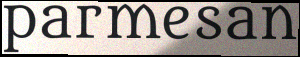
parmesan